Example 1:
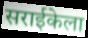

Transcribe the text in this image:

सराईकेला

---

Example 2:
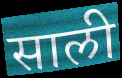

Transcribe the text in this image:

साली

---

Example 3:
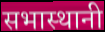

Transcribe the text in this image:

सभास्थानी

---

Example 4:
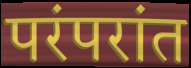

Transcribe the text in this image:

परंपरांत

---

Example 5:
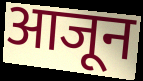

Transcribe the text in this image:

आजून